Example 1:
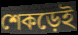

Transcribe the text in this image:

শেকড়েই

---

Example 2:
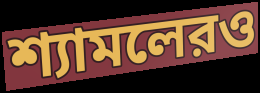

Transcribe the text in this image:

শ্যামলেরও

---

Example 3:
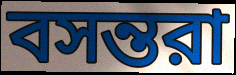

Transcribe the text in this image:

বসন্তরা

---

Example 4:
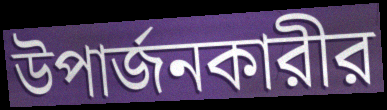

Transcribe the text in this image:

উপার্জনকারীর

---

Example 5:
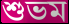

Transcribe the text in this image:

শুভম